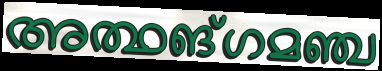
അത്ഥങ്ഗമഞ്ച